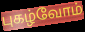
புகழ்வோம்